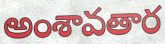
అంశావతార